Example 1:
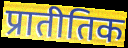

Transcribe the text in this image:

प्रातीतिक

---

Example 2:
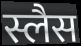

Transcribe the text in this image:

स्लैस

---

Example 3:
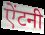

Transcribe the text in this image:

ऐंटनी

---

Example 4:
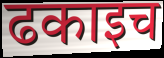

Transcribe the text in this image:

ढकाइच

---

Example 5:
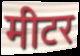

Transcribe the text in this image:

मीटर